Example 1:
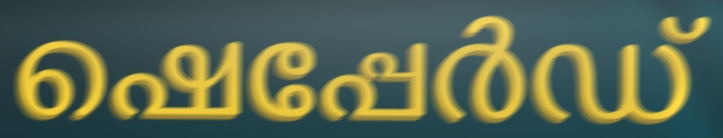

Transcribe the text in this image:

ഷെപ്പേർഡ്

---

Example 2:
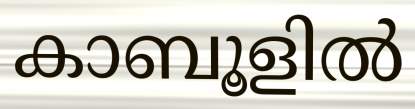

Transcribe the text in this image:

കാബൂളിൽ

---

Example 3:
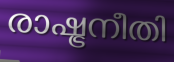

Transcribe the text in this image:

രാഷ്ട്രനീതി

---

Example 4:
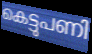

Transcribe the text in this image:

കെട്ടുപണി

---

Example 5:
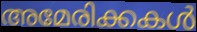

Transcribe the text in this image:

അമേരിക്കകൾ